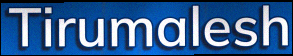
Tirumalesh